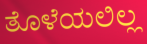
ತೊಳೆಯಲಿಲ್ಲ